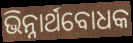
ଭିନ୍ନାର୍ଥବୋଧକ